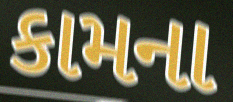
કામના